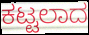
ಕಟ್ಟಲಾದ